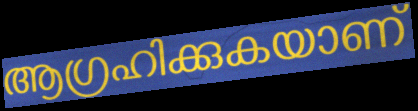
ആഗ്രഹിക്കുകയാണ്